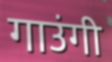
गाउंगी